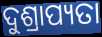
ଦୁଶ୍ରାପ୍ୟତା